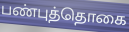
பண்புத்தொகை